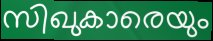
സിഖുകാരെയും